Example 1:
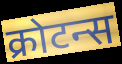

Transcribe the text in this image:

क्रोटन्स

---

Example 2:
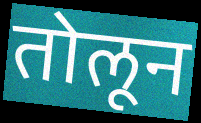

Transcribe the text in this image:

तोलून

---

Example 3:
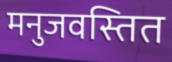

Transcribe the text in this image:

मनुजवस्तित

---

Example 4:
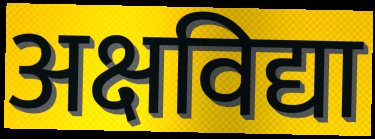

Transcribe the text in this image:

अक्षविद्या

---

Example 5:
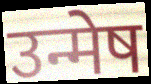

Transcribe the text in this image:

उन्मेष